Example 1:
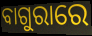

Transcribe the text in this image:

ବାଗୁରାରେ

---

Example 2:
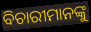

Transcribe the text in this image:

ବିଚାରୀମାନଙ୍କୁ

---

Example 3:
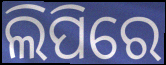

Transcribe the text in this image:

ଲିପିରେ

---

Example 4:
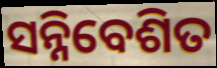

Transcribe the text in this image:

ସନ୍ନିବେଶିତ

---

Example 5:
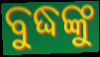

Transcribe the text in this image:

ବୁଦ୍ଧଙ୍କୁ